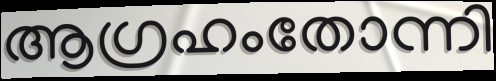
ആഗ്രഹംതോന്നി